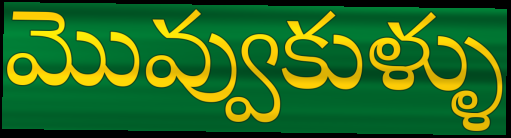
మొవ్వుకుళ్ళు